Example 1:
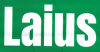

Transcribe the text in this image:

Laius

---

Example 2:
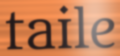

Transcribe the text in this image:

taile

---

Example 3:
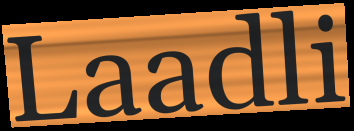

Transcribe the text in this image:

Laadli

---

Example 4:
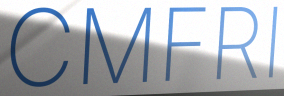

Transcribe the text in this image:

CMFRI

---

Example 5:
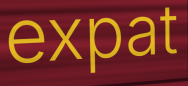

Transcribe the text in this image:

expat